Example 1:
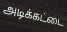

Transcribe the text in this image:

அடிக்கட்டை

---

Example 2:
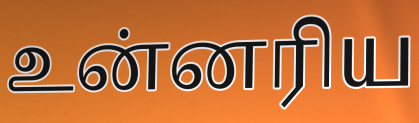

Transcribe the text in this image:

உன்னரிய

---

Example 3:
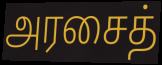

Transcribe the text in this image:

அரசைத்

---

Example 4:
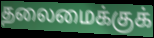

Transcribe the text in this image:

தலைமைக்குக்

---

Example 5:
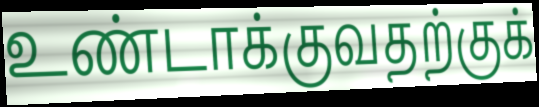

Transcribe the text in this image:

உண்டாக்குவதற்குக்